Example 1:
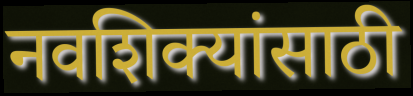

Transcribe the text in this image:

नवशिक्यांसाठी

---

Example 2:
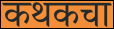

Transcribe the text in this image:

कथकचा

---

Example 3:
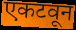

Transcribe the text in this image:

एकटवून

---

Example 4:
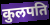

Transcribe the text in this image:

कुलपति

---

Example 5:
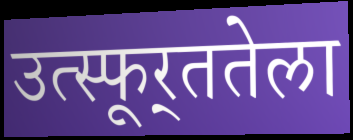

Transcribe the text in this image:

उत्स्फूर्ततेला